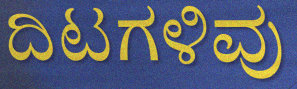
ದಿಟಗಳಿವು